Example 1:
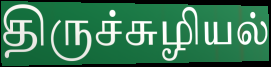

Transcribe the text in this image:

திருச்சுழியல்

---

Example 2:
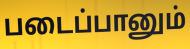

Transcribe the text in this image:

படைப்பானும்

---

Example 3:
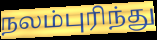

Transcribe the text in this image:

நலம்புரிந்து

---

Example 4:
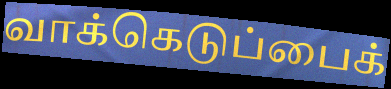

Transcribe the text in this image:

வாக்கெடுப்பைக்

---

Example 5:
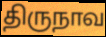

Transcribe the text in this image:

திருநாவ